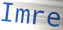
Imre